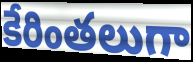
కేరింతలుగా